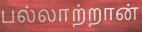
பல்லாற்றான்